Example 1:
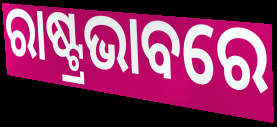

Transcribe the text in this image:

ରାଷ୍ଟ୍ରଭାବରେ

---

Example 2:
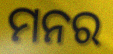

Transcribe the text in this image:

ମନର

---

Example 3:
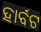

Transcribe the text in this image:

ହାର୍ବଟ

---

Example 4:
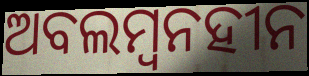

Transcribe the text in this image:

ଅବଲମ୍ବନହୀନ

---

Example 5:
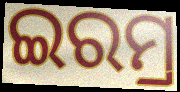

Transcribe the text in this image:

ଇରମ୍ର